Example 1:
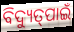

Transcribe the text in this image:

ବିଦ୍ୟୁତ୍‌ପାଇଁ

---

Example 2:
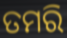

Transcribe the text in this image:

ତମରି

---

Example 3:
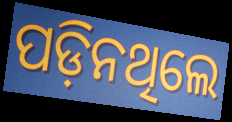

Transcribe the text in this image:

ପଡ଼ିନଥିଲେ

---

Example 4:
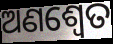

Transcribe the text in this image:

ଅଣଶ୍ୱେତ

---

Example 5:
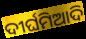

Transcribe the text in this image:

ଦୀର୍ଘମିଆଦି